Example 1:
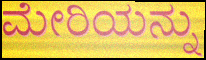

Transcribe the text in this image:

ಮೇರಿಯನ್ನು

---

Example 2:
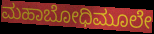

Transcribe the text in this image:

ಮಹಾಬೋಧಿಮೂಲೇ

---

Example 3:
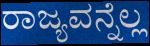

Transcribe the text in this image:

ರಾಜ್ಯವನ್ನೆಲ್ಲ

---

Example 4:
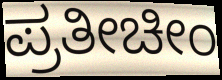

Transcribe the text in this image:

ಪ್ರತೀಚೀಂ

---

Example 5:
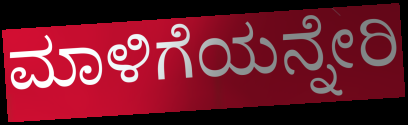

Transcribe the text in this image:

ಮಾಳಿಗೆಯನ್ನೇರಿ